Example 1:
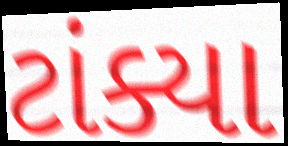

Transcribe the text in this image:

ટાંક્યા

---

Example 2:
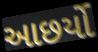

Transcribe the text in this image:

આછર્યો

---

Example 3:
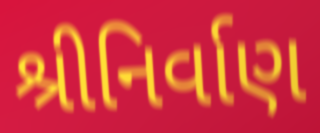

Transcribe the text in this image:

શ્રીનિર્વાણ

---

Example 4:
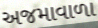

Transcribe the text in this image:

અજમાવાળા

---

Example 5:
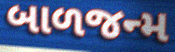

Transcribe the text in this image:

બાળજન્મ